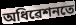
অধিৱেশনতে